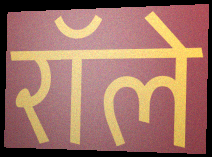
रॉले